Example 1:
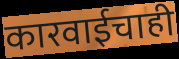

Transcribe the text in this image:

कारवाईचाही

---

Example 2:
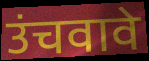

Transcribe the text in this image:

उंचवावे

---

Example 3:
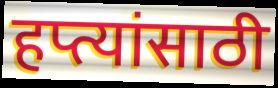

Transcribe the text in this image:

हप्त्यांसाठी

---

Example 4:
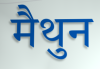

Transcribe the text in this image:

मैथुन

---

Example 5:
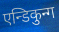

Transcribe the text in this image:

एन्डिकुन्ग